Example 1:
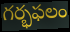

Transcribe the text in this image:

గర్భఫలం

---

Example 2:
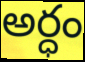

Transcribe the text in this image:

అర్ధం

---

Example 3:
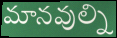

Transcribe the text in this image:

మానవుల్ని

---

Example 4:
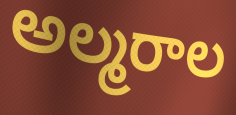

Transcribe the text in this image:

అల్మరాల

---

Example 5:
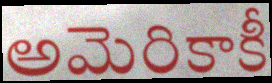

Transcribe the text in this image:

అమెరికాకీ